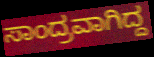
ಸಾಂದ್ರವಾಗಿದ್ದ